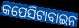
କପେସିଟାବାଇନ